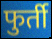
फुर्ती